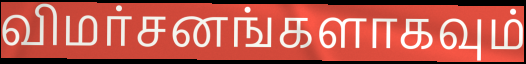
விமர்சனங்களாகவும்